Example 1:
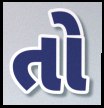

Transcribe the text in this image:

તો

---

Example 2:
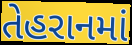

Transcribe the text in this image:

તેહરાનમાં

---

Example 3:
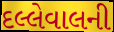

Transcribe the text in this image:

દલ્લેવાલની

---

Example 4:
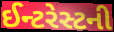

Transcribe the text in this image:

ઈન્ટરેસ્ટની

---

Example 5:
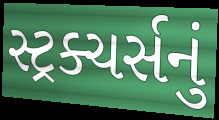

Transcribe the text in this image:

સ્ટ્રક્ચર્સનું